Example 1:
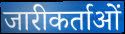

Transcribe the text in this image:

जारीकर्ताओं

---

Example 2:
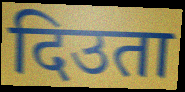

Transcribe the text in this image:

दिउता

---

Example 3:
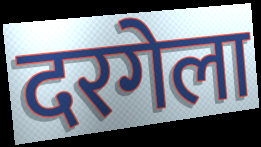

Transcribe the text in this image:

दरगेला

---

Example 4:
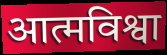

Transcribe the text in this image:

आत्मविश्वा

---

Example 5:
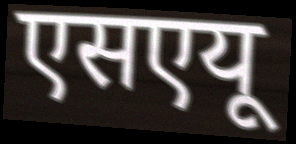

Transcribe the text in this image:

एसएयू